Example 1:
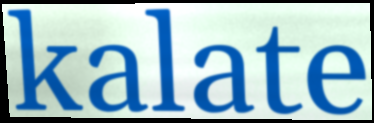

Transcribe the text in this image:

kalate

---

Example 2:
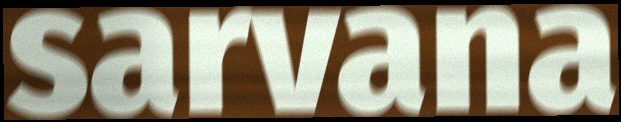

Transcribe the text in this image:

sarvana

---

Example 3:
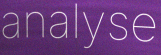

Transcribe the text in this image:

analyse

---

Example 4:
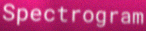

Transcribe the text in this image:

Spectrogram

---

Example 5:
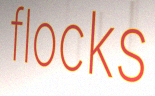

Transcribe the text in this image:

flocks